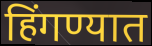
हिंगण्यात